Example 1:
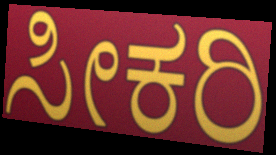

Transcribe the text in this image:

ಸೀಕರಿ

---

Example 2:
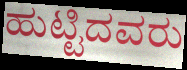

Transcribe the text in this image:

ಹುಟ್ಟಿದವರು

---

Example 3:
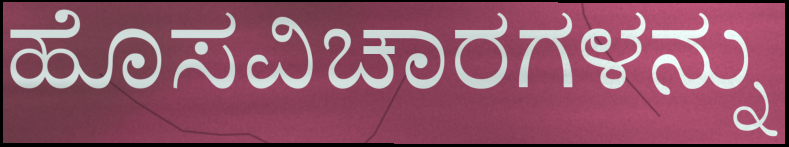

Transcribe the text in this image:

ಹೊಸವಿಚಾರಗಳನ್ನು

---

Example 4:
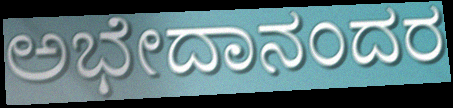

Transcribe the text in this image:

ಅಭೇದಾನಂದರ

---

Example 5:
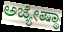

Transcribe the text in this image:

ಅಜ್ಯೇಷ್ಠಾ